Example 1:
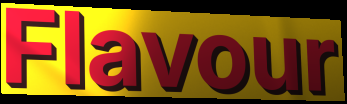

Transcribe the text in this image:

Flavour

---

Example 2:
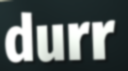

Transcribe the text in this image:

durr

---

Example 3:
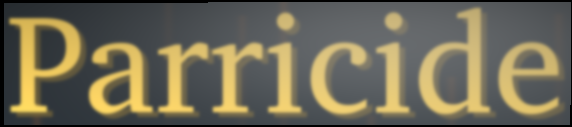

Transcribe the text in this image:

Parricide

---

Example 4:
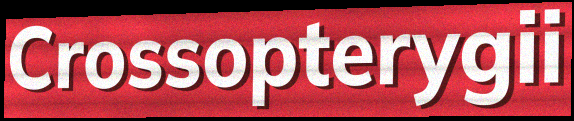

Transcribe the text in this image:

Crossopterygii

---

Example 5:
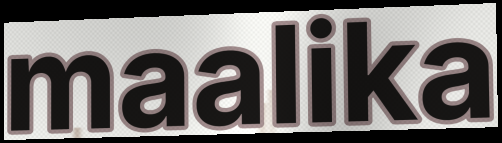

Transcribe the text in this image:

maalika